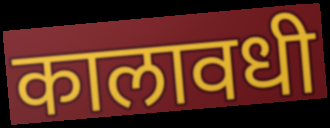
कालावधी